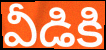
వీడికి